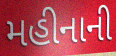
મહીનાની